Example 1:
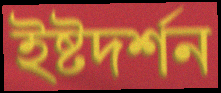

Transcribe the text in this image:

ইষ্টদর্শন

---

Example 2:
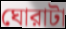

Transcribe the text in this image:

ঘোরাটা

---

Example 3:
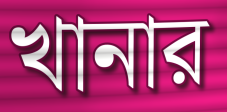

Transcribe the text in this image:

খানার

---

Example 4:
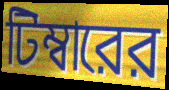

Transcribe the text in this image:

টিম্বারের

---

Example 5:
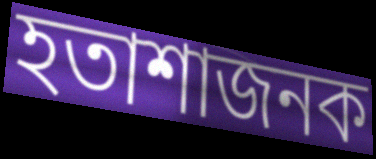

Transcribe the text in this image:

হতাশাজনক